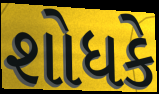
શોધકે